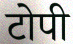
टोपी